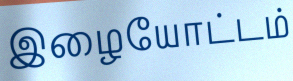
இழையோட்டம்